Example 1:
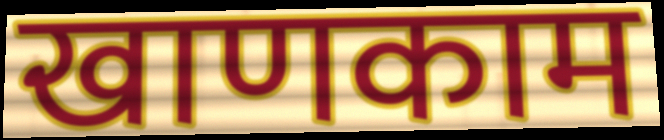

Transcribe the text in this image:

खाणकाम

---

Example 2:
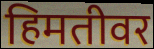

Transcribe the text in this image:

हिमतीवर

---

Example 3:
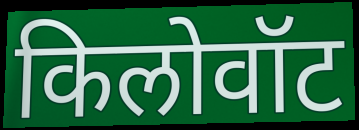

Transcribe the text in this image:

किलोवॉट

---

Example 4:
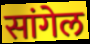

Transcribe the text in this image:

सांगेल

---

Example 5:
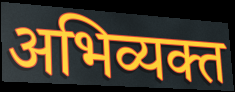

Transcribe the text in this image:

अभिव्यक्त